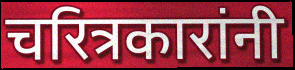
चरित्रकारांनी